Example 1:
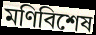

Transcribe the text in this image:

মণিবিশেষ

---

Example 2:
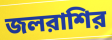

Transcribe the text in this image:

জলরাশির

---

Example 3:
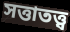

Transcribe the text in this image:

সত্তাতত্ত্ব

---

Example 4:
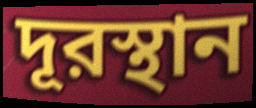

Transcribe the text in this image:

দূরস্থান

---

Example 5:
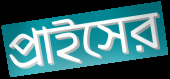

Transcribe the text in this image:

প্রাইসের